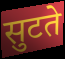
सुटते